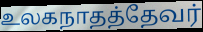
உலகநாதத்தேவர்